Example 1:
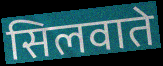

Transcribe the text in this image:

सिलवाते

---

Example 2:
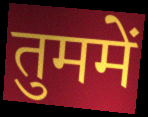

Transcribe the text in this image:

तुममें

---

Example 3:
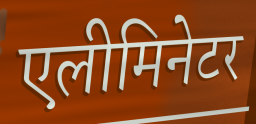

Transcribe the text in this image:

एलीमिनेटर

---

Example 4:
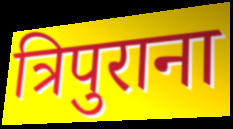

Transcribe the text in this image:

त्रिपुराना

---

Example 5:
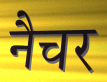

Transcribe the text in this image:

नैचर